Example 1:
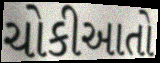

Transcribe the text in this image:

ચોકીઆતો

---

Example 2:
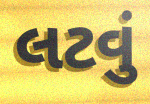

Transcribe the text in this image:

લટવું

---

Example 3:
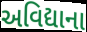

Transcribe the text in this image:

અવિદ્યાના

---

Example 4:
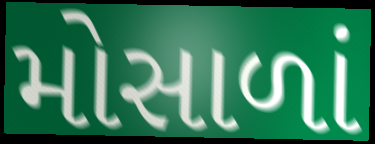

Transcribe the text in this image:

મોસાળાં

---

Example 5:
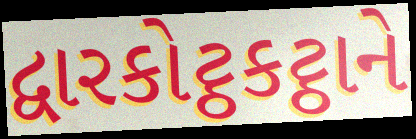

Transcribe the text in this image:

દ્વારકોટ્ઠકટ્ઠાને